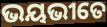
ଭୟଭୀତେ